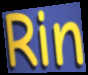
Rin